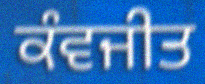
ਕੰਵਜੀਤ